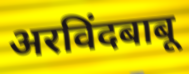
अरविंदबाबू